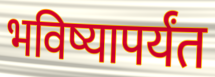
भविष्यापर्यंत